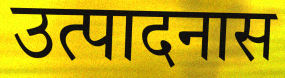
उत्पादनास